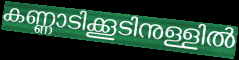
കണ്ണാടിക്കൂടിനുള്ളിൽ